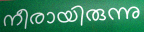
നീരായിരുന്നു